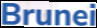
Brunei